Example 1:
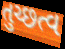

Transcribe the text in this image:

તુચ્છત્વ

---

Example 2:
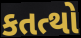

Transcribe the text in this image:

કતત્થો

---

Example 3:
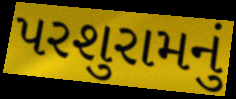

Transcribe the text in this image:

પરશુરામનું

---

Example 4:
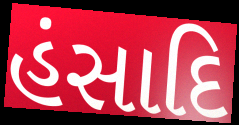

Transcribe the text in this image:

હંસાદિ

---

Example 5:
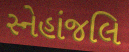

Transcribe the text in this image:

સ્નેહાંજલિ